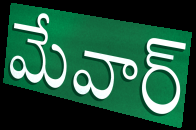
మేవార్